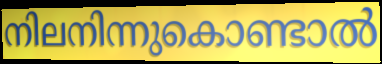
നിലനിന്നുകൊണ്ടാൽ